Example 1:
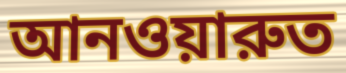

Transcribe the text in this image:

আনওয়ারুত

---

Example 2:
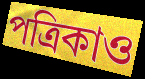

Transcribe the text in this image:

পত্রিকাও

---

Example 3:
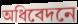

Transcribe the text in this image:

অধিবেদনে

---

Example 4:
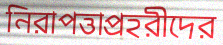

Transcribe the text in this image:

নিরাপত্তাপ্রহরীদের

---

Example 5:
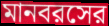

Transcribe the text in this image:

মানবরসের